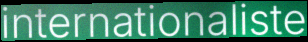
internationaliste